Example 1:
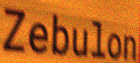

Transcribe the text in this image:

Zebulon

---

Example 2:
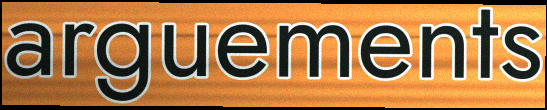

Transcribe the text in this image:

arguements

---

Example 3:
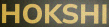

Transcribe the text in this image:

HOKSHI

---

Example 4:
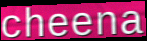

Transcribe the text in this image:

cheena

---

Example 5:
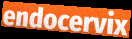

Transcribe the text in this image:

endocervix